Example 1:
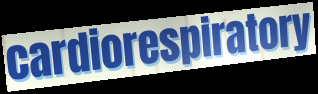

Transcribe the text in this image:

cardiorespiratory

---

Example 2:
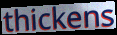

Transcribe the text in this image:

thickens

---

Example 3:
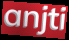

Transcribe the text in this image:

anjti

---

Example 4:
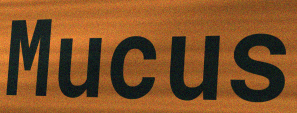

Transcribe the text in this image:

Mucus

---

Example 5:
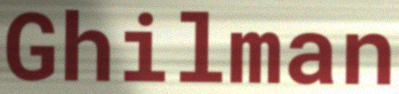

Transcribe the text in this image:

Ghilman